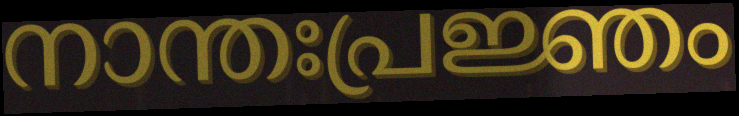
നാന്തഃപ്രജ്ഞം